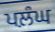
ਪਲ਼ੰਘ